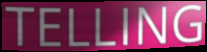
TELLING